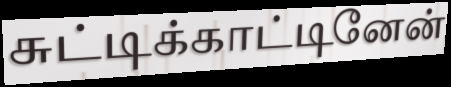
சுட்டிக்காட்டினேன்